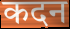
कदन